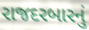
રાજદરબારનું